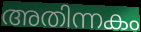
അതിന്നകം